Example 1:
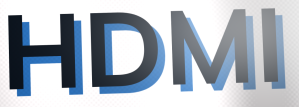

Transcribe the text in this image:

HDMI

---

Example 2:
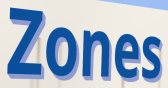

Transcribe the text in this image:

Zones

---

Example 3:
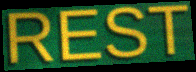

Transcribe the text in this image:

REST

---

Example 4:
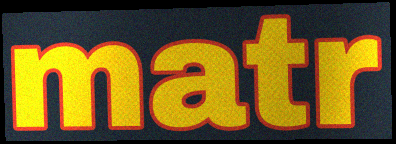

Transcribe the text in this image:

matr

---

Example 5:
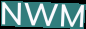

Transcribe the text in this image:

NWM